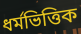
ধৰ্মভিত্তিক